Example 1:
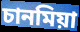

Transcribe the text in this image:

চানমিয়া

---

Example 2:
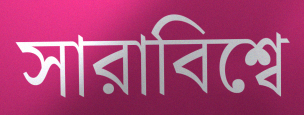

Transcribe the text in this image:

সারাবিশ্বে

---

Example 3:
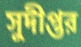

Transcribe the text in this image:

সুদীপ্তর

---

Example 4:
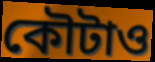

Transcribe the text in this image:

কৌটাও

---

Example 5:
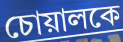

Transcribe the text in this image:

চোয়ালকে